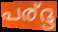
പര്ദ്ദ